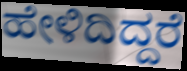
ಹೇಳಿದಿದ್ದರೆ